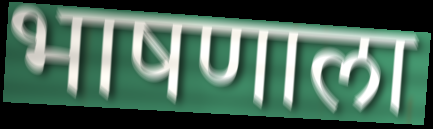
भाषणाला